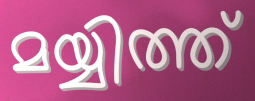
മയ്യിത്ത്